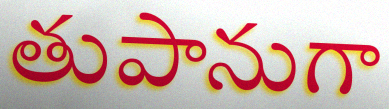
తుపానుగా